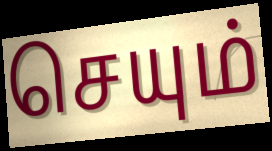
செயும்